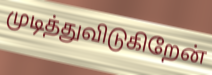
முடித்துவிடுகிறேன்